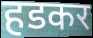
हडकर